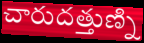
చారుదత్తుణ్ని